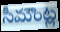
సీమౌంట్ల